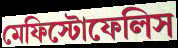
মেফিস্টোফেলিস